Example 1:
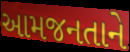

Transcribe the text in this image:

આમજનતાને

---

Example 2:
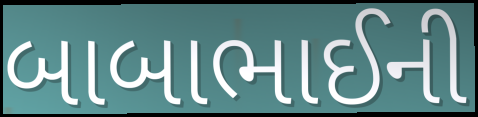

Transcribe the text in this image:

બાબાભાઈની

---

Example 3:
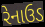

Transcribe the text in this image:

રેનાઉડ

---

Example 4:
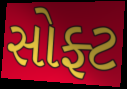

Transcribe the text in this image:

સોફ્ટ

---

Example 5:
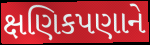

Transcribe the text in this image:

ક્ષણિકપણાને